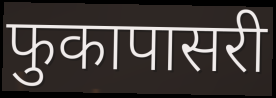
फुकापासरी